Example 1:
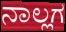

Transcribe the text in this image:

ನಾಲ್ಲಗ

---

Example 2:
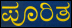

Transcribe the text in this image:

ಪೂರಿತ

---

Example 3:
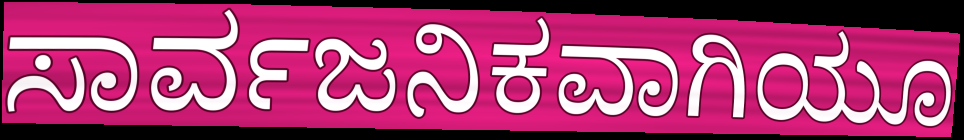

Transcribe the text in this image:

ಸಾರ್ವಜನಿಕವಾಗಿಯೂ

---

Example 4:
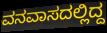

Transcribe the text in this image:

ವನವಾಸದಲ್ಲಿದ್ದ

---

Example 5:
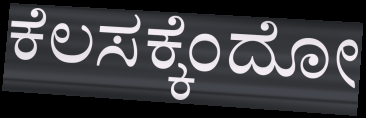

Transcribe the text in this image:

ಕೆಲಸಕ್ಕೆಂದೋ